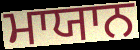
ਮਾਯਾਨ